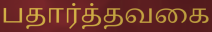
பதார்த்தவகை